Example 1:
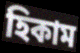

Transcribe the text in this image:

হিকাম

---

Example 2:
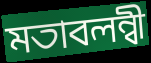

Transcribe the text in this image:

মতাবলন্বী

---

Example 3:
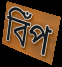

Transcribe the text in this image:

বিঁপ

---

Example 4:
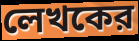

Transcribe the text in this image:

লেখকের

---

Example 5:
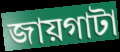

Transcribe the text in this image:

জায়গাটা